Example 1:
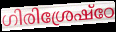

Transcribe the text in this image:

ഗിരിശ്രേഷ്ഠേ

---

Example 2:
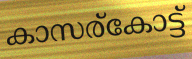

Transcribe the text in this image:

കാസര്കോട്ട്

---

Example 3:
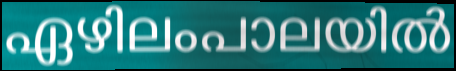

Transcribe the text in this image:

ഏഴിലംപാലയിൽ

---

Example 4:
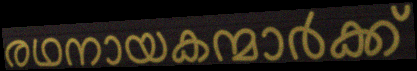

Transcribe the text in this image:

രഥനായകന്മാർക്ക്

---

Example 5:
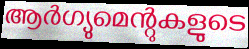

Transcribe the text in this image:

ആർഗ്യുമെന്റുകളുടെ